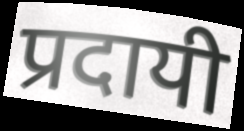
प्रदायी